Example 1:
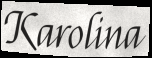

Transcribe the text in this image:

Karolina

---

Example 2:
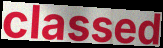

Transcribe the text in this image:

classed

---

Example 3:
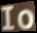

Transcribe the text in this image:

Io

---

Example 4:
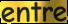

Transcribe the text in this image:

entre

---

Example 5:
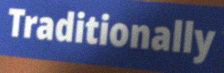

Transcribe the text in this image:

Traditionally